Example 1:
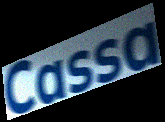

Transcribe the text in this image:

Cassa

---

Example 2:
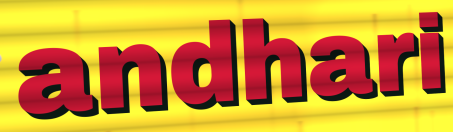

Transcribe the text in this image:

andhari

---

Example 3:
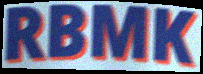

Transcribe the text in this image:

RBMK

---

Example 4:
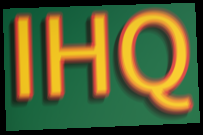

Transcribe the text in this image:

IHQ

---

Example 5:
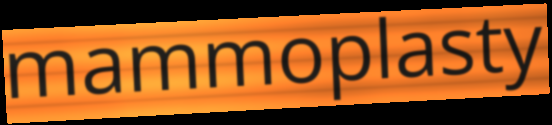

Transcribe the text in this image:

mammoplasty